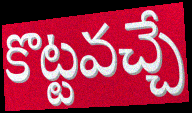
కొట్టవచ్చే